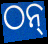
ଠନ୍